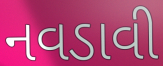
નવડાવી